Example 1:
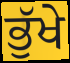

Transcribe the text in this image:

ਭੁੱਖੇ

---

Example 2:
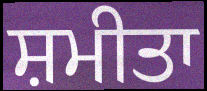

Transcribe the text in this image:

ਸ਼ਮੀਤਾ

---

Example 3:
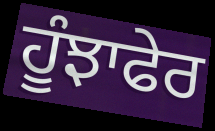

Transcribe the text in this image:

ਹੂੰਝਾਫੇਰ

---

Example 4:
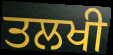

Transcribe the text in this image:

ਤਲਖੀ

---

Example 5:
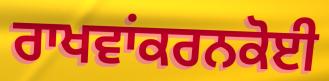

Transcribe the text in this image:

ਰਾਖਵਾਂਕਰਨਕੋਈ